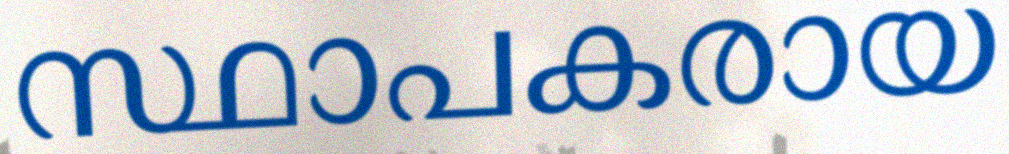
സ്ഥാപകരായ